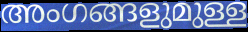
അംഗങ്ങളുമുള്ള